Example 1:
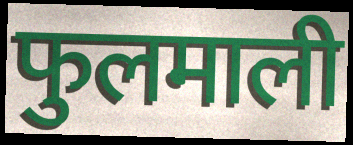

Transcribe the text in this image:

फुलमाली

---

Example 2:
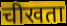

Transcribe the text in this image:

चीखता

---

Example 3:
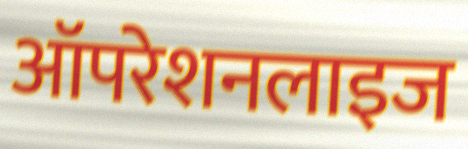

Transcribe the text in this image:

ऑपरेशनलाइज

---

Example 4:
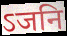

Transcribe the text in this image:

ऽजनि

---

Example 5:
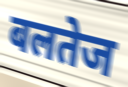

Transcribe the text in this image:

बलतेज